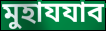
মুহাযযাব